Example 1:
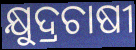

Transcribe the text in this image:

କ୍ଷୁଦ୍ରଚାଷୀ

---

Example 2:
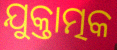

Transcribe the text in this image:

ଯୁକ୍ତାତ୍ମକ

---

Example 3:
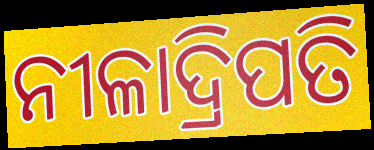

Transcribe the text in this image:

ନୀଳାଦ୍ରିପତି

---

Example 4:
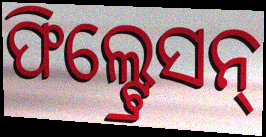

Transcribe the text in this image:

ଫିଲ୍ଟ୍ରେସନ୍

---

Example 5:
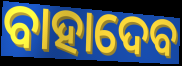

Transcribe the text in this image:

ବାହାଦେବ